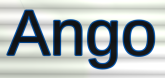
Ango